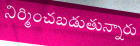
నిర్మించబడుతున్నారు